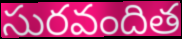
సురవందిత